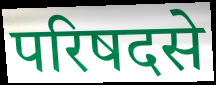
परिषदसे